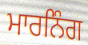
ਮਾਰਨਿੰਗ